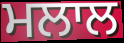
ਮਲਾਲ